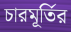
চারমূর্তির